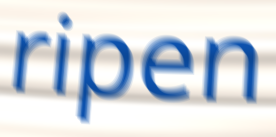
ripen